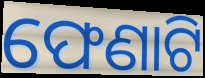
ଫେଣାଟି